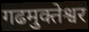
गढमुक्तेश्वर